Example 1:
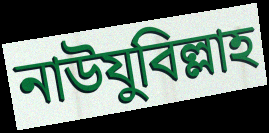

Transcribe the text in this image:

নাউযুবিল্লাহ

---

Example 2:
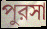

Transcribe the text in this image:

পুরসা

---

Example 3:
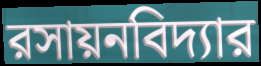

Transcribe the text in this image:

রসায়নবিদ্যার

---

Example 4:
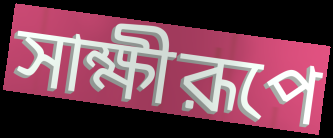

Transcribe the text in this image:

সাক্ষীরূপে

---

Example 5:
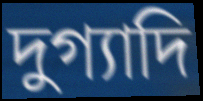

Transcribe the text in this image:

দুগ্যাদি